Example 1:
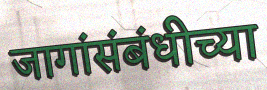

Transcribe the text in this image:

जागांसंबंधीच्या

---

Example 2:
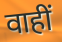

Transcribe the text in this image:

वाहीं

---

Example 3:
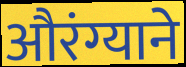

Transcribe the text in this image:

औरंग्याने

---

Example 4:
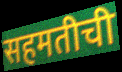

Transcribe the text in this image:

सहमतीची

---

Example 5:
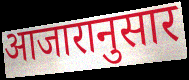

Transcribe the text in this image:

आजारानुसार